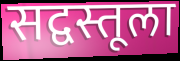
सद्वस्तूला